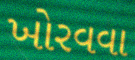
ખોરવવા